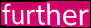
further